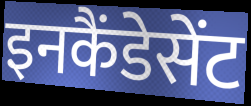
इनकैंडेसेंट